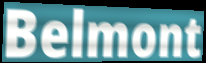
Belmont